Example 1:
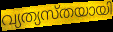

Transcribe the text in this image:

വ്യത്യസ്തയായി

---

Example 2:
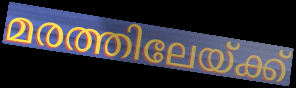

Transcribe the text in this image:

മരത്തിലേയ്ക്ക്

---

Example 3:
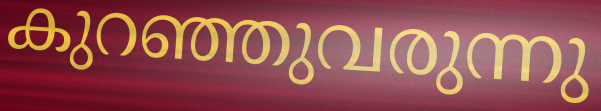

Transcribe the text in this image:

കുറഞ്ഞുവരുന്നു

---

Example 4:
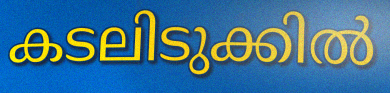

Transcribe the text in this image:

കടലിടുക്കിൽ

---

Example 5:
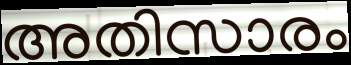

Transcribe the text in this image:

അതിസാരം